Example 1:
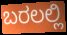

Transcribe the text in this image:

ಬರಲಲ್ಲಿ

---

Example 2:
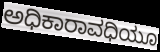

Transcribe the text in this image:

ಅಧಿಕಾರಾವಧಿಯೂ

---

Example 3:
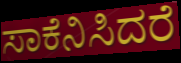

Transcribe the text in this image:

ಸಾಕೆನಿಸಿದರೆ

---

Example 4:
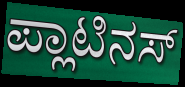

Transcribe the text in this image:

ಪ್ಲಾಟಿನಸ್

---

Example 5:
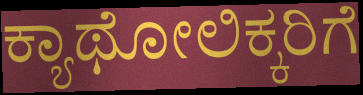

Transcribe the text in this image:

ಕ್ಯಾಥೋಲಿಕ್ಕರಿಗೆ